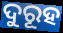
ଦୁରୂହ